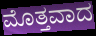
ಮೊತ್ತವಾದ